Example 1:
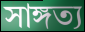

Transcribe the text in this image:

সাঙ্গত্য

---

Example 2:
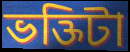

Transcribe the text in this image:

ভক্তিটা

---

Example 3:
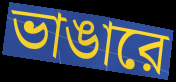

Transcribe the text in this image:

ভাঙারে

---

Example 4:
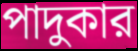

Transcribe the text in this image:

পাদুকার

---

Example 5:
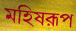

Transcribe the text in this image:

মহিষরূপ